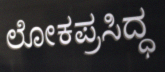
ಲೋಕಪ್ರಸಿದ್ಧ